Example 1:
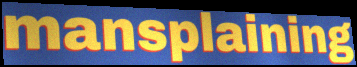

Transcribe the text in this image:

mansplaining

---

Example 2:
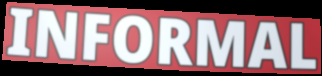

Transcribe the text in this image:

INFORMAL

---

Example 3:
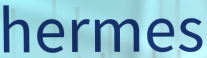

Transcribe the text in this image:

hermes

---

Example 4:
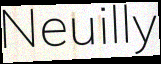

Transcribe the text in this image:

Neuilly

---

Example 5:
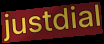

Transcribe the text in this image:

justdial